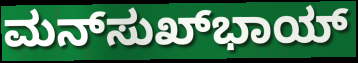
ಮನ್‌ಸುಖ್‌ಭಾಯ್